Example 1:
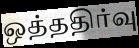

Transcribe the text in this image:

ஒத்ததிர்வு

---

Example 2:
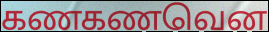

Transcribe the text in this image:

கணகணவென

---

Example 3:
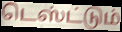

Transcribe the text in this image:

டெஸ்ட்டும்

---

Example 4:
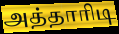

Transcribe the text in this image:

அத்தாரிடி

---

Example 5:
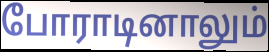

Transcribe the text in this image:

போராடினாலும்